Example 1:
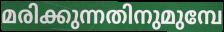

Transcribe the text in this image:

മരിക്കുന്നതിനുമുമ്പേ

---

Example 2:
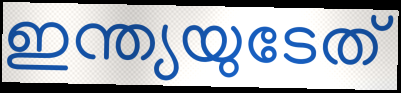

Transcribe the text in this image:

ഇന്ത്യയുടേത്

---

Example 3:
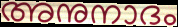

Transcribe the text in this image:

അനുനാദം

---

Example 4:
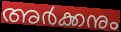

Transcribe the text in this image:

അർക്കനും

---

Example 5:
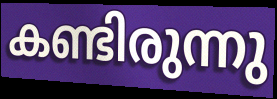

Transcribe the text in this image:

കണ്ടിരുന്നു